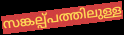
സങ്കല്പ്പത്തിലുള്ള